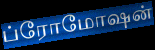
ப்ரோமோஷன்